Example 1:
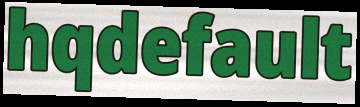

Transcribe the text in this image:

hqdefault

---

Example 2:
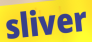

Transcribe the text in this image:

sliver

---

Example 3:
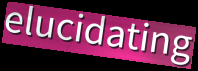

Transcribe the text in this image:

elucidating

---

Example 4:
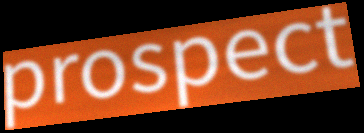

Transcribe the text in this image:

prospect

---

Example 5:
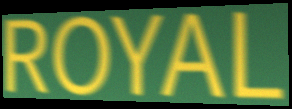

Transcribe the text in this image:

ROYAL